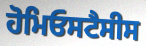
ਹੋਮਿਓਸਟੈਸੀਸ